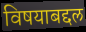
विषयाबद्दल